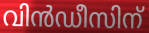
വിൻഡീസിന്